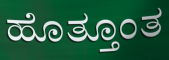
ಹೊತ್ತೂಂತ